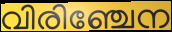
വിരിഞ്ചേന